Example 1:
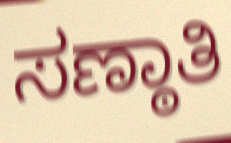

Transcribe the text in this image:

ಸಣ್ಠಾತಿ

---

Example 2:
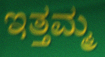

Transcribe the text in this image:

ಇತ್ತಮ್ಮ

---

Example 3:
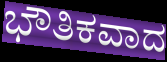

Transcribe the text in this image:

ಭೌತಿಕವಾದ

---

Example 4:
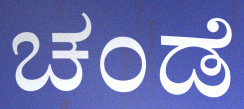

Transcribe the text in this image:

ಚಂಡೆ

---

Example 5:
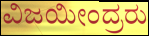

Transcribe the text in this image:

ವಿಜಯೀಂದ್ರರು